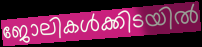
ജോലികൾക്കിടയിൽ